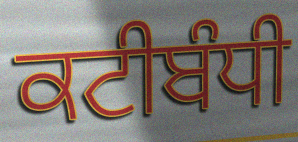
ਕਟੀਬੰਧੀ